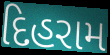
દિહરામ